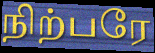
நிற்பரே